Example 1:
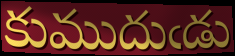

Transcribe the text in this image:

కుముదుఁడు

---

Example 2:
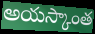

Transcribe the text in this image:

అయస్కాంత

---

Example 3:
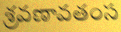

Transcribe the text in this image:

శ్రవణావతంస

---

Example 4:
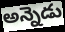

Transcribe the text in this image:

అన్నెడు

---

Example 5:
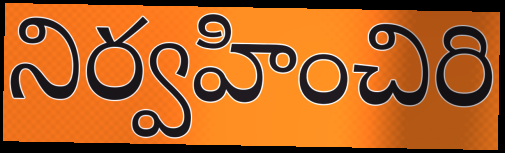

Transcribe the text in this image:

నిర్వహించిరి